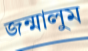
জন্মালুম